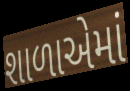
શાળાએમાં